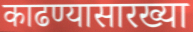
काढण्यासारख्या